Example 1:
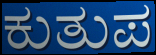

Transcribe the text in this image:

ಕುತುಪ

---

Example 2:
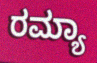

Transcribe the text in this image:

ರಮ್ಯಾ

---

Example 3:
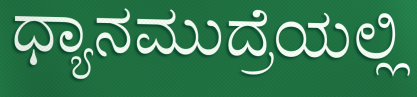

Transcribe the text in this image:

ಧ್ಯಾನಮುದ್ರೆಯಲ್ಲಿ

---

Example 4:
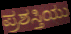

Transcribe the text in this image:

ಪ್ರಶಸ್ತಿಯು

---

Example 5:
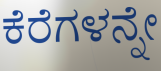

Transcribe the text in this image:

ಕೆರೆಗಳನ್ನೇ